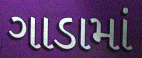
ગાડામાં